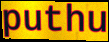
puthu